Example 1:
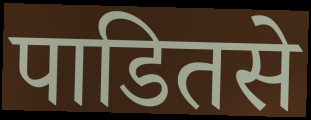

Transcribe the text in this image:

पाडितसे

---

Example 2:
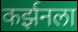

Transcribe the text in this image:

कर्झनला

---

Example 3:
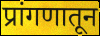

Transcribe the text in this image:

प्रांगणातून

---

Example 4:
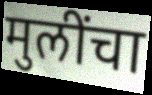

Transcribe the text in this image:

मुलींचा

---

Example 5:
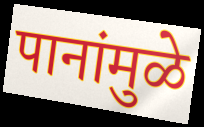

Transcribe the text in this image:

पानांमुळे